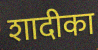
शादीका